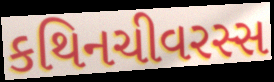
કથિનચીવરસ્સ